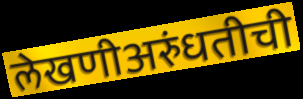
लेखणीअरुंधतीची